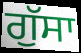
ਗੁੱਸਾ